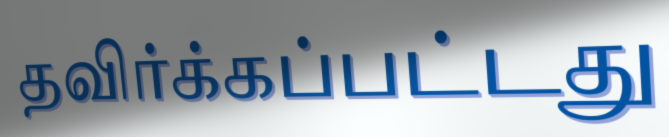
தவிர்க்கப்பட்டது